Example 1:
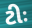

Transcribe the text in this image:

ટીઃ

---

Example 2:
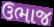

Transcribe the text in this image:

ઉભાજ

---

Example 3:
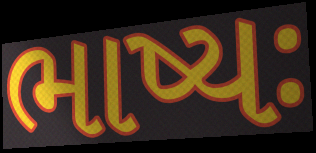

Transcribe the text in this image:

ભાષ્યઃ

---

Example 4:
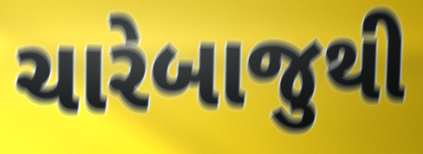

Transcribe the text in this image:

ચારેબાજુથી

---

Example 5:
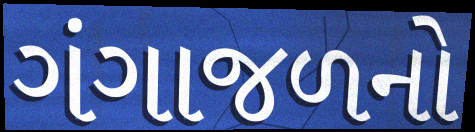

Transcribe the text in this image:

ગંગાજળનો